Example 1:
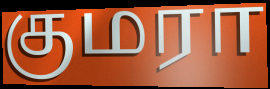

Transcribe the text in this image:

குமரா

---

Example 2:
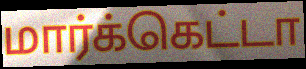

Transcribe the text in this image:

மார்க்கெட்டா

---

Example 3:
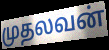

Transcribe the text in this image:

முதலவன்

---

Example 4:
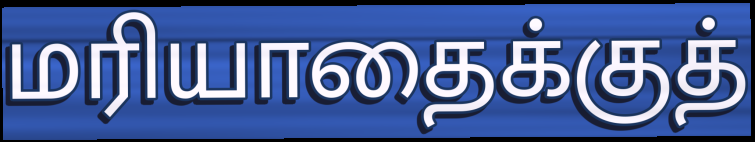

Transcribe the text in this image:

மரியாதைக்குத்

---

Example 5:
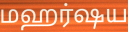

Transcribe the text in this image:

மஹர்ஷய